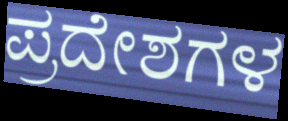
ಪ್ರದೇಶಗಳ